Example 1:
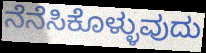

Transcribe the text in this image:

ನೆನೆಸಿಕೊಳ್ಳುವುದು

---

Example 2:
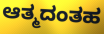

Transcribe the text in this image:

ಆತ್ಮದಂತಹ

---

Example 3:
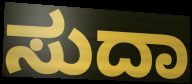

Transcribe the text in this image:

ಸುದಾ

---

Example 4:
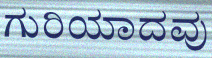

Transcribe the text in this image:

ಗುರಿಯಾದವು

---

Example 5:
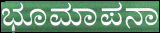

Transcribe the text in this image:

ಭೂಮಾಪನಾ